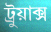
ট্রুয়াক্স